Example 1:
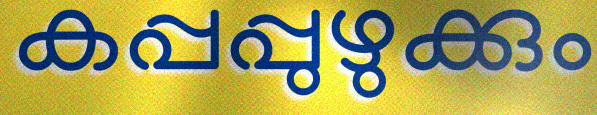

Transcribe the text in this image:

കപ്പപ്പുഴുക്കും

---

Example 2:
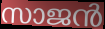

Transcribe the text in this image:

സാജൻ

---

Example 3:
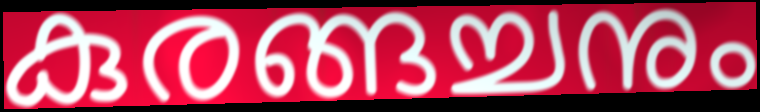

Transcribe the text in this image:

കുരങ്ങച്ചനും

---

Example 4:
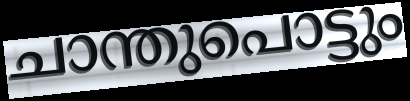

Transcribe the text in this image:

ചാന്തുപൊട്ടും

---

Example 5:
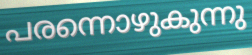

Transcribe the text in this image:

പരന്നൊഴുകുന്നു